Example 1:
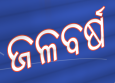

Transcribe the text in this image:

ଜଳବର୍ଷ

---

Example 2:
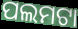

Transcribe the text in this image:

ପଲମଟା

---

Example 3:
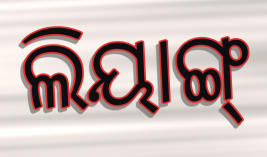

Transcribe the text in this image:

ଲିୟାଙ୍ଗ୍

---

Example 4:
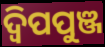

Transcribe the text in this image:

ଦ୍ଵିପପୁଞ୍ଜ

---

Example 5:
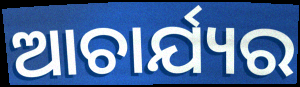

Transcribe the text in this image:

ଆଚାର୍ଯ୍ୟର